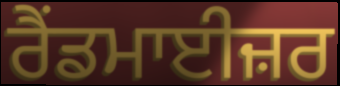
ਰੈਂਡਮਾਈਜ਼ਰ